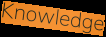
Knowledge